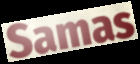
Samas